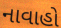
નાવાહો